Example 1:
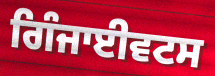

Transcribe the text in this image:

ਗਿੰਜਾਈਵਟਸ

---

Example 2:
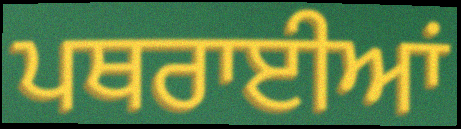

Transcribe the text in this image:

ਪਥਰਾਈਆਂ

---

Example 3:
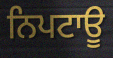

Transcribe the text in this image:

ਨਿਪਟਾਊ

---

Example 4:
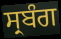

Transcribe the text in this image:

ਸ੍ਰਬੰਗ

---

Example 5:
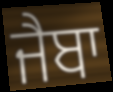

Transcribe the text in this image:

ਜੈਬਾ